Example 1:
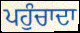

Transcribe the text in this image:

ਪਹੁੰਚਾਦਾ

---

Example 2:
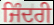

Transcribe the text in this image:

ਜਿੰਦਰੀ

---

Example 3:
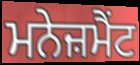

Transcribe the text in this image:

ਮਨੇਜ਼ਮੈਂਟ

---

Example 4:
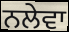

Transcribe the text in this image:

ਨਲੇਵਾ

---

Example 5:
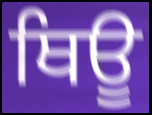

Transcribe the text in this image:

ਥਿਊ